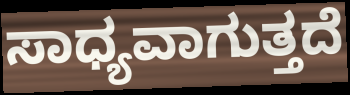
ಸಾಧ್ಯವಾಗುತ್ತದೆ